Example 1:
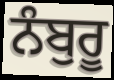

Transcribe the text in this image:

ਨੰਬੁਰੂ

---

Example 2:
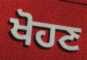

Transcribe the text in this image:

ਖੋਹਣ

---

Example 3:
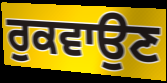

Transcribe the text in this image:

ਰੁਕਵਾਉਣ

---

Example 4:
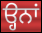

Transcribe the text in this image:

ੳ੍ਹਨਾਂ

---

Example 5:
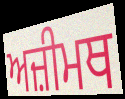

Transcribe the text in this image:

ਅਜ਼ੀਮਥ